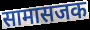
सामासजक